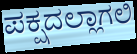
ಪಕ್ಷದಲ್ಲಾಗಲಿ